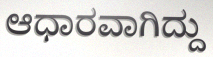
ಆಧಾರವಾಗಿದ್ದು